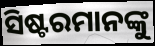
ସିଷ୍ଟରମାନଙ୍କୁ